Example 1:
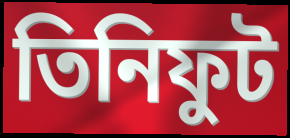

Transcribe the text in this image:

তিনিফুট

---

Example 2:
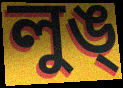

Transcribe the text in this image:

লুঙ্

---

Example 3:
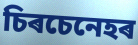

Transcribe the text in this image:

চিৰচেনেহৰ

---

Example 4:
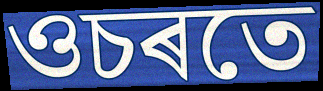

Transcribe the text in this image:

ওচৰতে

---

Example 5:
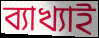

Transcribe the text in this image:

ব্যাখ্যাই